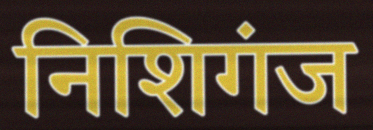
निशिगंज